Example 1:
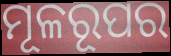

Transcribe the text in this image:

ମୂଳରୂପର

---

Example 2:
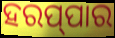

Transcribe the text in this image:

ହରପ୍‌ପାର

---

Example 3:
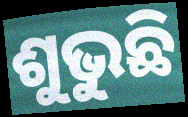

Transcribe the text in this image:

ଶୁଭୁଛି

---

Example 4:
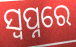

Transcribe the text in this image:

ସ୍ୱପ୍ନରେ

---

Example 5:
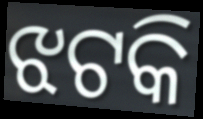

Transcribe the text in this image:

ଝଟକି